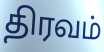
திரவம்